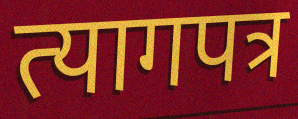
त्‍यागपत्र